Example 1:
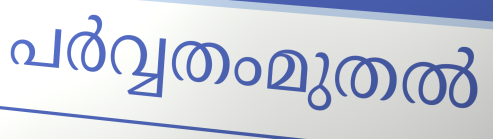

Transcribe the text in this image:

പർവ്വതംമുതൽ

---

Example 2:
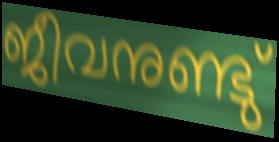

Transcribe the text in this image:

ജീവനുണ്ടു്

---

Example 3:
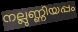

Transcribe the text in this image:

നല്ലുണ്ണിയപ്പം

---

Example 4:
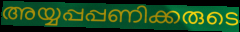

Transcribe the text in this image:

അയ്യപ്പപ്പണിക്കരുടെ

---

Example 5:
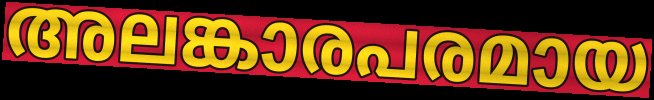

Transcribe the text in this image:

അലങ്കാരപരമായ